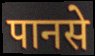
पानसे